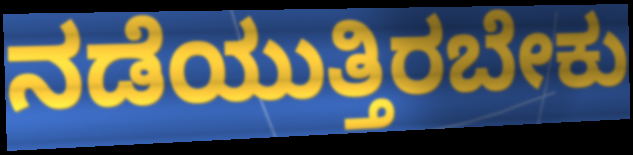
ನಡೆಯುತ್ತಿರಬೇಕು